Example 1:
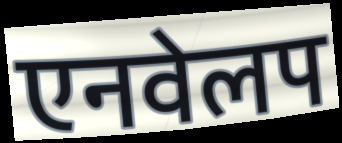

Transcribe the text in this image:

एनवेलप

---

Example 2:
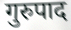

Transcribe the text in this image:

गुरुपाद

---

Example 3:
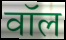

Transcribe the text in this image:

वॉल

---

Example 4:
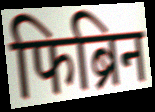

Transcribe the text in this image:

फिब्रिन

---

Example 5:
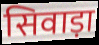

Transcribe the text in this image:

सिवाड़ा